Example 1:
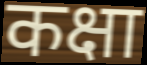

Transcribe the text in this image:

कक्षा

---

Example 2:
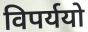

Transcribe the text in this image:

विपर्ययो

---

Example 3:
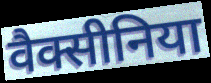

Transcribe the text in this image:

वैक्सीनिया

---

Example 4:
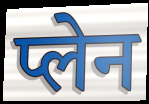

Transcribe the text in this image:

प्लेन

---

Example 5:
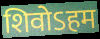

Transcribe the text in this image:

शिवोऽहम